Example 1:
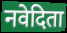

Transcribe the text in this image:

नवेदिता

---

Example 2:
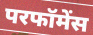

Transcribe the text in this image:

परफॉमेंस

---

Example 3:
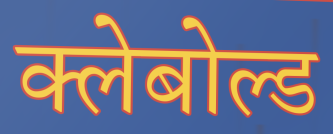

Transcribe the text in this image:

क्लेबोल्ड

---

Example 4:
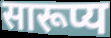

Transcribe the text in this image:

सारूप्य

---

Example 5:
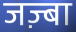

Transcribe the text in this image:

जज़्बा